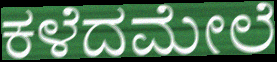
ಕಳೆದಮೇಲೆ